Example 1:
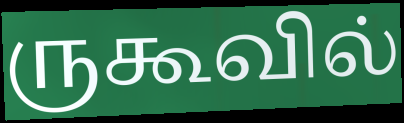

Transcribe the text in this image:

ருகூவில்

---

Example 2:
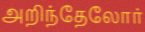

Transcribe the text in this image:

அறிந்தேலோர்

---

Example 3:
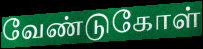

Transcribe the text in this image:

வேண்டுகோள்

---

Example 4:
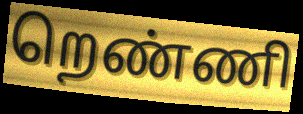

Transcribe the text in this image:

றெண்ணி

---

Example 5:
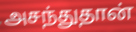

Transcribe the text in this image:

அசந்துதான்